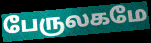
பேருலகமே